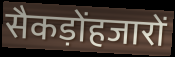
सैकड़ोंहजारों